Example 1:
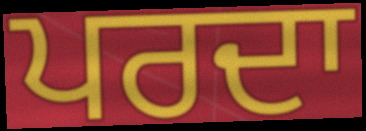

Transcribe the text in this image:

ਪਰਦਾ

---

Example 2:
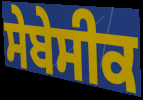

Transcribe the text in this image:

ਸੇਬੇਸੀਕ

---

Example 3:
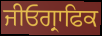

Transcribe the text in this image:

ਜੀਓਗ੍ਰਾਫਿਕ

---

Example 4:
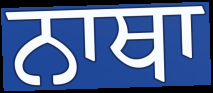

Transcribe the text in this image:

ਨਾਥਾ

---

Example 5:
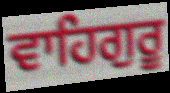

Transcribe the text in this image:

ਵਾਹਿਗੁਰੂ